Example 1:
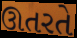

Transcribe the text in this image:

ઊતરતે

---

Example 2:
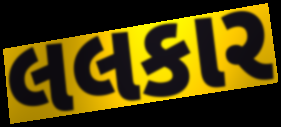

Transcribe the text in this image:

લલકાર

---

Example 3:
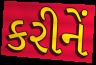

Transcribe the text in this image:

કરીનેં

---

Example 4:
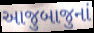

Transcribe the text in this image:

આજુબાજુનાં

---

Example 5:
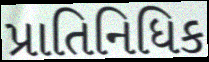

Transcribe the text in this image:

પ્રાતિનિધિક